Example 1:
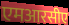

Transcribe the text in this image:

एमआरसीए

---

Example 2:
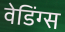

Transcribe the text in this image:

वेडिंग्स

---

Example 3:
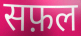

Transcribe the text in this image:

सफ़ल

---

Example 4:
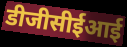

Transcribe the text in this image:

डीजीसीईआई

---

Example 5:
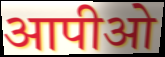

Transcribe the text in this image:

आपीओ